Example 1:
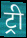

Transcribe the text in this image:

ट्री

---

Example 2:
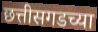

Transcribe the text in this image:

छत्तीसगडच्या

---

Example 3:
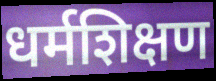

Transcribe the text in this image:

धर्मशिक्षण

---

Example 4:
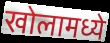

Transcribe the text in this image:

खोलामध्ये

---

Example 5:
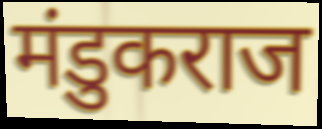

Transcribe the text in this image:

मंडुकराज